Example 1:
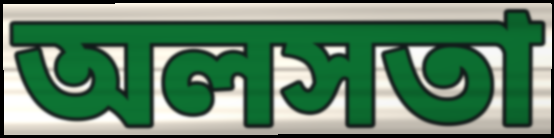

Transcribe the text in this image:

অলসতা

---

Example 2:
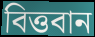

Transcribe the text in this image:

বিত্তবান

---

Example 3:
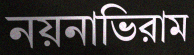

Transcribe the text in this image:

নয়নাভিরাম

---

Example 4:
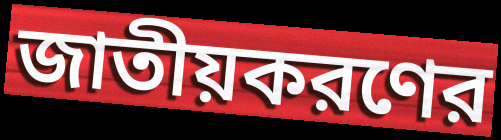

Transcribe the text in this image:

জাতীয়করণের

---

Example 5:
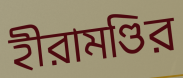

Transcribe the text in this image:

হীরামণ্ডির